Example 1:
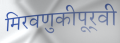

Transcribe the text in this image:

मिरवणुकीपूर्वी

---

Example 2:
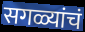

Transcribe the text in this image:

सगळ्यांचं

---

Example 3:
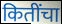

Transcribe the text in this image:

कितींचा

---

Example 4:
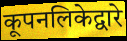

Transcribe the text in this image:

कूपनलिकेद्वारे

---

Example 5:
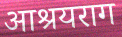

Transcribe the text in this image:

आश्रयराग